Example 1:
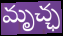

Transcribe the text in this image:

మృచ్ఛ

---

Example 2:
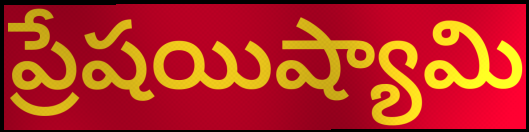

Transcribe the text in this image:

ప్రేషయిష్యామి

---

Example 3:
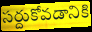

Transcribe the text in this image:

సర్దుకోవడానికి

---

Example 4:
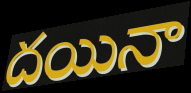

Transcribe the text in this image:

దయినా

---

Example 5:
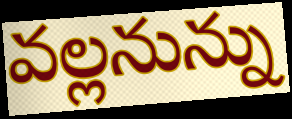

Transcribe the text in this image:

వల్లనున్ను